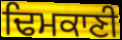
ਢਿਮਕਾਣੀ